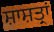
ਸ਼ਾਸ਼ਤ੍ਰਾਂ